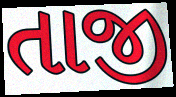
તાજી